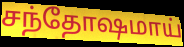
சந்தோஷமாய்